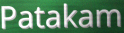
Patakam